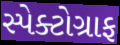
સ્પેક્ટોગ્રાફ